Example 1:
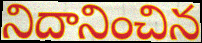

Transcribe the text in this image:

నిదానించిన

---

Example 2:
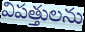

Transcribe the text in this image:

విపత్తులను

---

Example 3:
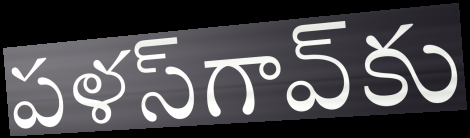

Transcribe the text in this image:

పళస్‌గావ్‌కు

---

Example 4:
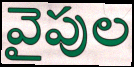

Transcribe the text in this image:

వైపుల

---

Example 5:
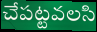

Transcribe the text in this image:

చేపట్టవలసి